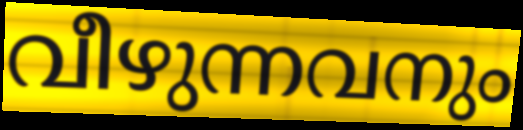
വീഴുന്നവനും